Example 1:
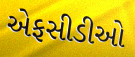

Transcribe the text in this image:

એફસીડીઓ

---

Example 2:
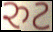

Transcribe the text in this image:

રુટ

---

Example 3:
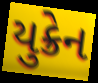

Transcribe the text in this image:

યુક્રેન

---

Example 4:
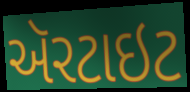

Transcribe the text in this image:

ઍરટાઇટ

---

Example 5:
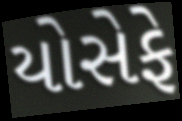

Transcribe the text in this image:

યોસેફે